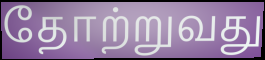
தோற்றுவது